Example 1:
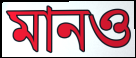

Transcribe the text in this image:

মানও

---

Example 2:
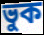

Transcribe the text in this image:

ভুক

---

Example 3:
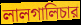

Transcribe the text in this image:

লালগালিচার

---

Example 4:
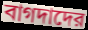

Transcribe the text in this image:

বাগদাদের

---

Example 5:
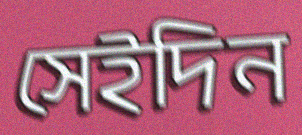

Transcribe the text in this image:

সেইদিন